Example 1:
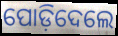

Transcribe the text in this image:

ପୋଡ଼ିଦେଲେ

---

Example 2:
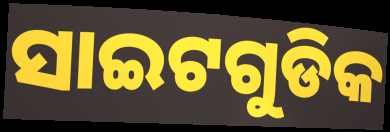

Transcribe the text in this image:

ସାଇଟଗୁଡିକ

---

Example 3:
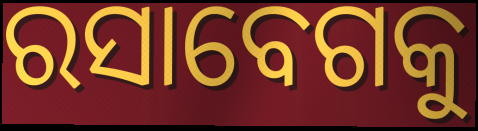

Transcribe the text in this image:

ରସାବେଗକୁ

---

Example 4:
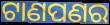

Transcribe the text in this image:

ଟାଣପଣର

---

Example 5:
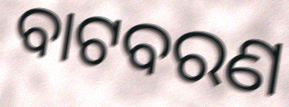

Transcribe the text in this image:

ବାଟବରଣ